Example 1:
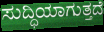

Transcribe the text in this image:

ಸುದ್ಧಿಯಾಗುತ್ತದೆ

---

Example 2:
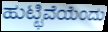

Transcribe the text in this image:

ಹುಟ್ಟಿವೆಯೆಂದು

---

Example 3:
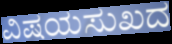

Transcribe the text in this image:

ವಿಷಯಸುಖದ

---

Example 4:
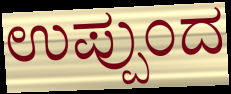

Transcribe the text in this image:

ಉಪ್ಪುಂದ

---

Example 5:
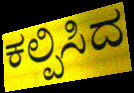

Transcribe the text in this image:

ಕಲ್ಪಿಸಿದ